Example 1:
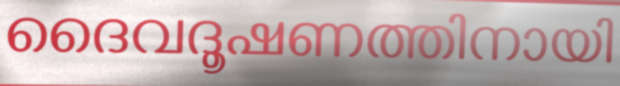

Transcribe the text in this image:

ദൈവദൂഷണത്തിനായി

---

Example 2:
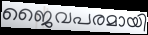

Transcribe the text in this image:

ജൈവപരമായി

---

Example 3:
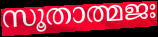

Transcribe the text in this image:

സൂതാത്മജഃ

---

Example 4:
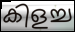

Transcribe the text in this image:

കിളച്ച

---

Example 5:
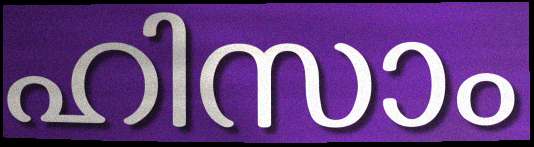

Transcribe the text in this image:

ഹിസാം